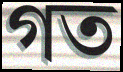
গত